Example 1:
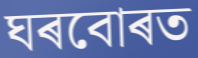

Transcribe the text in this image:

ঘৰবোৰত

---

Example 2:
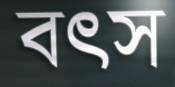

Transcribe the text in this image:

বৎস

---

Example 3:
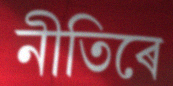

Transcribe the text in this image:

নীতিৰে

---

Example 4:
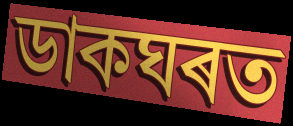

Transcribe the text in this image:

ডাকঘৰত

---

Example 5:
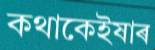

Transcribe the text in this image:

কথাকেইষাৰ